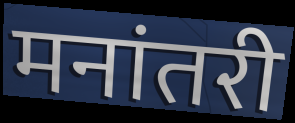
मनांतरी